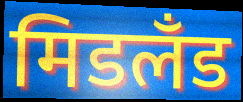
मिडलँड